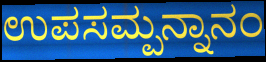
ಉಪಸಮ್ಪನ್ನಾನಂ